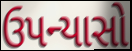
ઉપન્યાસો